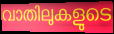
വാതിലുകളുടെ